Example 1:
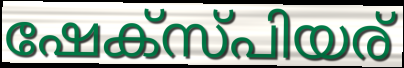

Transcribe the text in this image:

ഷേക്സ്പിയര്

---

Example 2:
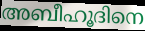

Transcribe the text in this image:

അബീഹൂദിനെ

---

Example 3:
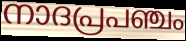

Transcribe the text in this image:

നാദപ്രപഞ്ചം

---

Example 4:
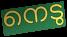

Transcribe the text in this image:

നെടു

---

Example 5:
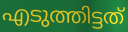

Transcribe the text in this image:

എടുത്തിട്ടത്